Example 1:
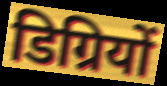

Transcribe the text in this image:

डिग्रियों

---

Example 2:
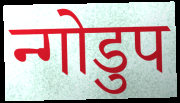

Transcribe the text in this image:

न्गोडुप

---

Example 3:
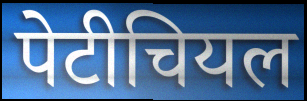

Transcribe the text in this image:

पेटीचियल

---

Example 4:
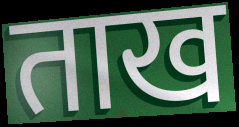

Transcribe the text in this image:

ताख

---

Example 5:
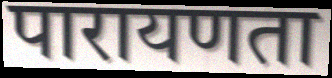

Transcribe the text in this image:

पारायणता